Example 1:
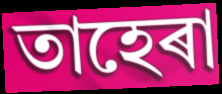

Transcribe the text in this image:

তাহেৰা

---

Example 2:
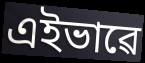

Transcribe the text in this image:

এইভাৱে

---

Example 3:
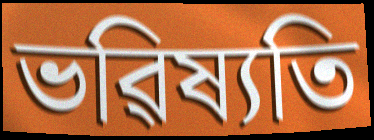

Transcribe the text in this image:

ভৱিষ্যতি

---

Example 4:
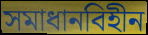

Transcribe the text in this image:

সমাধানবিহীন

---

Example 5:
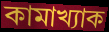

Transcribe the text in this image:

কামাখ্যাক